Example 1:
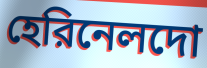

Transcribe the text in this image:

হেরিনেলদো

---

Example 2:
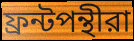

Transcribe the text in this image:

ফ্রন্টপন্থীরা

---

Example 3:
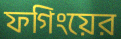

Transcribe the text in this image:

ফগিংয়ের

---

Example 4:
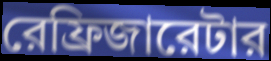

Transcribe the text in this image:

রেফ্রিজারেটার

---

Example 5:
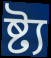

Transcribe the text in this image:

ষ্ট্য